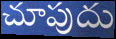
చూపుదు